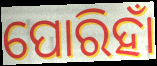
ପୋରିହାଁ